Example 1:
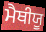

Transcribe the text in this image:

ਮੈਥੀਯੂ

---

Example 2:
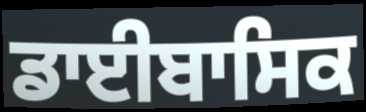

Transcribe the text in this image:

ਡਾਈਬਾਸਿਕ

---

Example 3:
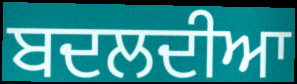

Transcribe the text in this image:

ਬਦਲਦੀਆ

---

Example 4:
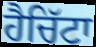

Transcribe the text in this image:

ਹੈਚਿੱਟਾ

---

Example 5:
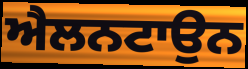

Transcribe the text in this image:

ਐਲਨਟਾਉਨ